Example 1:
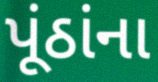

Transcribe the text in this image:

પૂંઠાંના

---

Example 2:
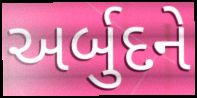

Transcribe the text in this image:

અર્બુદને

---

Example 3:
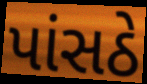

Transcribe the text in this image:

પાંસઠે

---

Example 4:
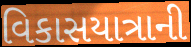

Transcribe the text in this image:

વિકાસયાત્રાની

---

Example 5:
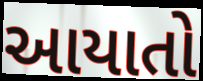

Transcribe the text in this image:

આયાતો